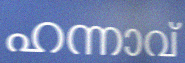
ഹന്നാവ്